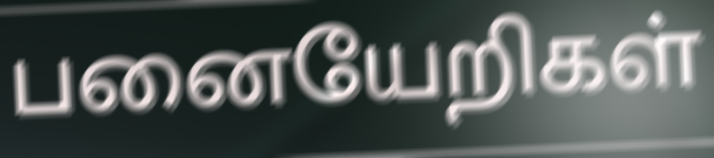
பனையேறிகள்